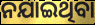
ନଯାଇଥିବା